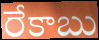
రేకాబు